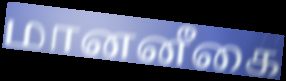
மானனீகை